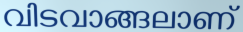
വിടവാങ്ങലാണ്